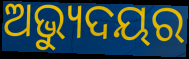
ଅଭ୍ୟୁଦୟର